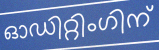
ഓഡിറ്റിംഗിന്